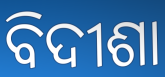
ବିଦୀଶା